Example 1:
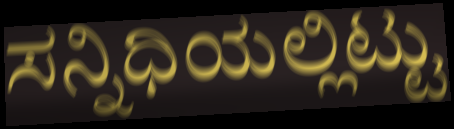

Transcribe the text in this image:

ಸನ್ನಿಧಿಯಲ್ಲಿಟ್ಟು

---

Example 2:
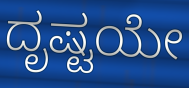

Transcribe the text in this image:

ದೃಷ್ಟಯೇ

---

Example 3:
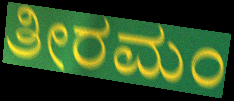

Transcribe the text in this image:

ತೀರಮಂ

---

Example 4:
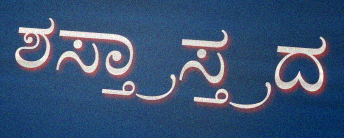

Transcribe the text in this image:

ಶಸ್ತ್ರಾಸ್ತ್ರದ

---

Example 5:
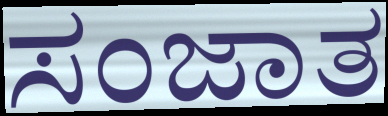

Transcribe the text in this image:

ಸಂಜಾತ